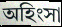
অহিংসা